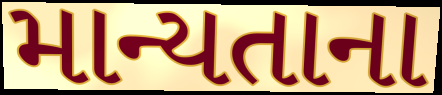
માન્યતાના